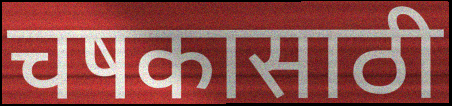
चषकासाठी